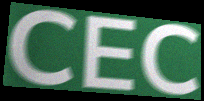
CEC